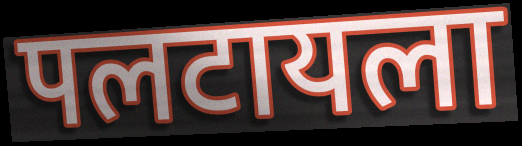
पलटायला